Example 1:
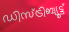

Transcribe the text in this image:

ഡിസ്ട്രിബ്യൂട്ട്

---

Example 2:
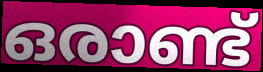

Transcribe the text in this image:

ഒരാണ്ട്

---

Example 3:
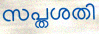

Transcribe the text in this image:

സപ്തശതി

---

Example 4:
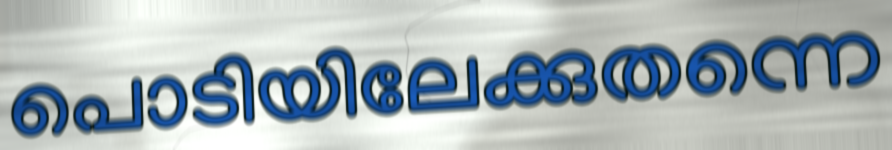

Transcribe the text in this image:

പൊടിയിലേക്കുതന്നെ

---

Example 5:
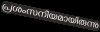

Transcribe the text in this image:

പ്രശംസനീയമായിരുന്നു